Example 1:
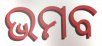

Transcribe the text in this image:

ଭମବ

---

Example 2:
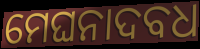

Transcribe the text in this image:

ମେଘନାଦବଧ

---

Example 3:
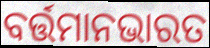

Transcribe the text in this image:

ବର୍ତ୍ତମାନଭାରତ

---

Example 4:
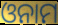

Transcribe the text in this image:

ଓନାମ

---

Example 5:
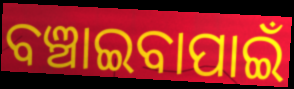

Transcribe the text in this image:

ବଞ୍ଚାଇବାପାଇଁ